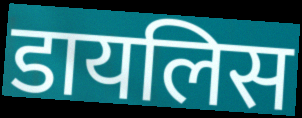
डायलिस